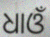
ଧାଓଁ